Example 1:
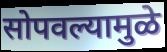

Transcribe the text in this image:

सोपवल्यामुळे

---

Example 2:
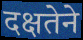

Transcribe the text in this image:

दक्षतेने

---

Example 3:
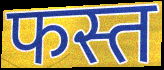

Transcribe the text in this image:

फस्त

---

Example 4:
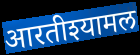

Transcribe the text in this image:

आरतीश्यामल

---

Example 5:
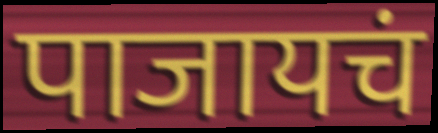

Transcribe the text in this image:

पाजायचं